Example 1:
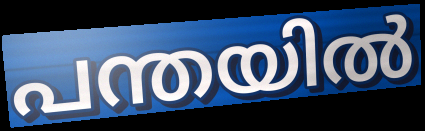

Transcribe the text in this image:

പന്തയിൽ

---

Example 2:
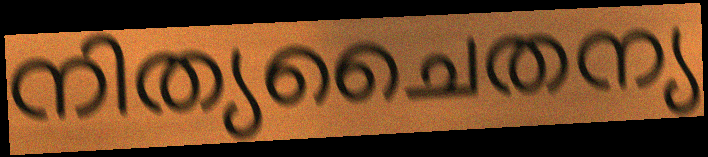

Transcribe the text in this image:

നിത്യചൈതന്യ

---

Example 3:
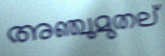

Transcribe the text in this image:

അഞ്ചുമുതല്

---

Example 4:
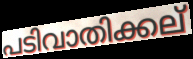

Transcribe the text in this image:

പടിവാതിക്കല്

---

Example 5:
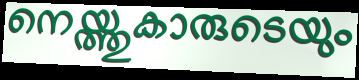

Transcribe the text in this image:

നെയ്ത്തുകാരുടെയും